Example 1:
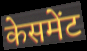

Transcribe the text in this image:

केसमेंट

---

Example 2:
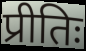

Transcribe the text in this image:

प्रीतिः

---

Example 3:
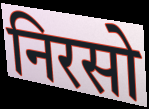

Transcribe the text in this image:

निरसो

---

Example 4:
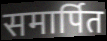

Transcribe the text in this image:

समार्पित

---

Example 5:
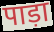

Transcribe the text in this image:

पाड़ा